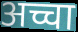
अच्चा